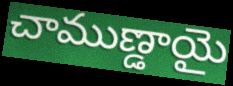
చాముణ్డాయై